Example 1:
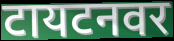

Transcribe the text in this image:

टायटनवर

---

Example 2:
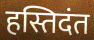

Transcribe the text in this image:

हस्तिदंत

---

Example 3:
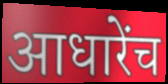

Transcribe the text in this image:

आधारेंच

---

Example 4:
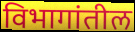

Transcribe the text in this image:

विभागांतील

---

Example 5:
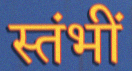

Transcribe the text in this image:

स्तंभीं